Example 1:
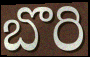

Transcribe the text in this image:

బొరి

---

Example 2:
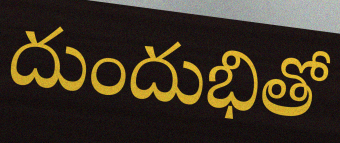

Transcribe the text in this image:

దుందుభితో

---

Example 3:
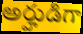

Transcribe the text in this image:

అర్హుడిగా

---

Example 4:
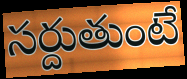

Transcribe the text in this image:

సర్దుతుంటే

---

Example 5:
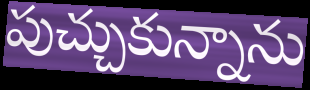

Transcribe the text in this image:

పుచ్చుకున్నాను